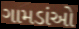
ગામડાંઓ